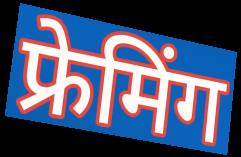
फ्रेमिंग